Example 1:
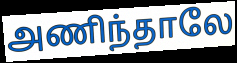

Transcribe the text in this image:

அணிந்தாலே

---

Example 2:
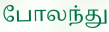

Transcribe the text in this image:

போலந்து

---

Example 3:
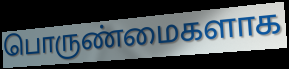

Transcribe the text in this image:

பொருண்மைகளாக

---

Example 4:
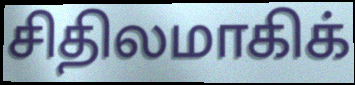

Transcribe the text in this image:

சிதிலமாகிக்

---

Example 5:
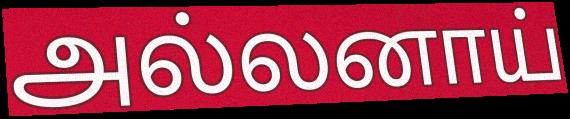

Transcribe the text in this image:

அல்லனாய்